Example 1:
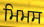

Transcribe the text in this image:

ਮਿਮਸ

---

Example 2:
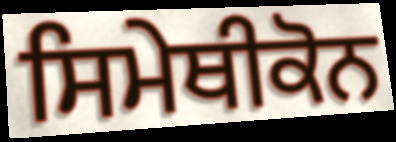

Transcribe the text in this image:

ਸਿਮੇਥੀਕੋਨ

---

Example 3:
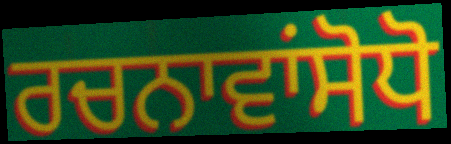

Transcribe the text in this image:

ਰਚਨਾਵਾਂਸੋਧੋ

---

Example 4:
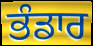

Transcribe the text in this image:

ਭੰਡਾਰ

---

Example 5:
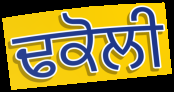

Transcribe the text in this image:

ਢਕੋਲੀ